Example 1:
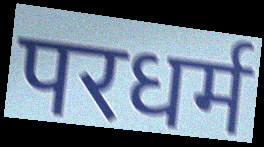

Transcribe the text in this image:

परधर्म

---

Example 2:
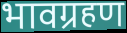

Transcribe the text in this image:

भावग्रहण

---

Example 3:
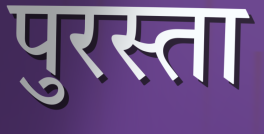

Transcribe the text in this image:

पुरस्ता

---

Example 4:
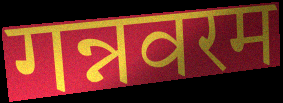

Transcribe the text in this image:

गन्नवरम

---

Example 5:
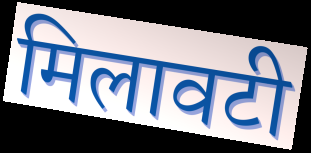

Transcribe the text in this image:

मिलावटी